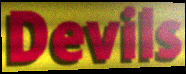
Devils